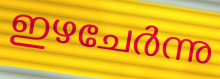
ഇഴചേർന്നു